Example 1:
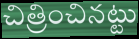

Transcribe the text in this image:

చిత్రించినట్టు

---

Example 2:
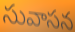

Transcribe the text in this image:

సువాసన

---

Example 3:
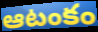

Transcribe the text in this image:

ఆటంకం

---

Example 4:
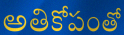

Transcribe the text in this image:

అతికోపంతో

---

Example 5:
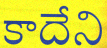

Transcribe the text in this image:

కాదేని